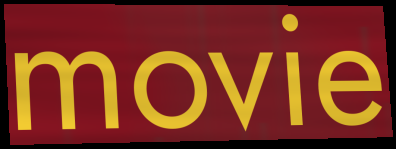
movie